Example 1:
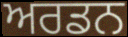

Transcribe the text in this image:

ਅਰਡਨ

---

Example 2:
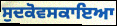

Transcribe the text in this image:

ਸੁਦਕੋਵਸਕਾਇਆ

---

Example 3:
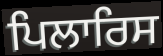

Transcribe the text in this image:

ਪਿਲਾਰਿਸ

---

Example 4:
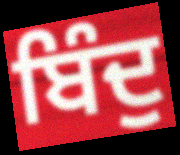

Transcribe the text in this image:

ਬਿੰਦੁ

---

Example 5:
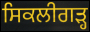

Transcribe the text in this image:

ਸਿਕਲੀਗੜ੍ਹ